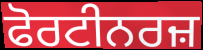
ਫੋਰਟੀਨਰਜ਼